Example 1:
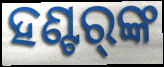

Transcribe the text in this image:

ହଣ୍ଟର୍‌ଙ୍କ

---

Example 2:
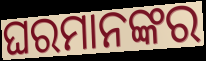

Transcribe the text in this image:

ଘରମାନଙ୍କର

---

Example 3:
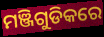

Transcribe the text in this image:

ମଞ୍ଜିଗୁଡିକରେ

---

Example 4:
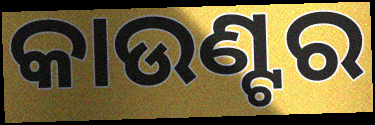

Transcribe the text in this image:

କାଉଣ୍ଟର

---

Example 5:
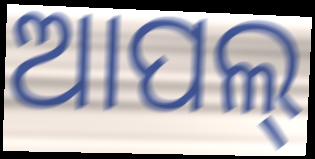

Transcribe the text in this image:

ଆପଲ୍